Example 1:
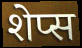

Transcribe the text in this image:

शेप्स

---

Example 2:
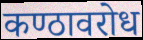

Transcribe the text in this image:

कण्ठावरोध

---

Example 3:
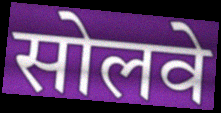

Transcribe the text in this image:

सोलवे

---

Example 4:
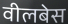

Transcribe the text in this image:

वीलबेस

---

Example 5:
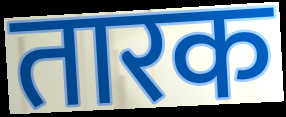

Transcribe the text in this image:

तारक